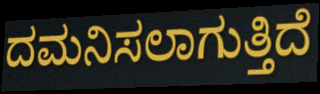
ದಮನಿಸಲಾಗುತ್ತಿದೆ